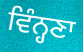
ਵਿੰਨ੍ਹਣਾ